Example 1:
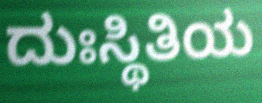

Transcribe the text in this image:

ದುಃಸ್ಥಿತಿಯ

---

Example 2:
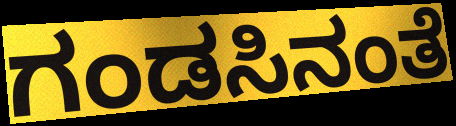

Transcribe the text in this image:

ಗಂಡಸಿನಂತೆ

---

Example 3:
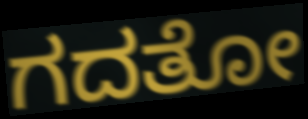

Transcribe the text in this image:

ಗದತೋ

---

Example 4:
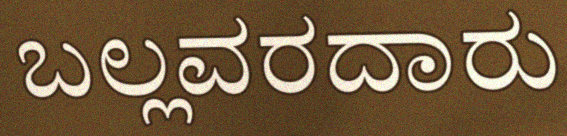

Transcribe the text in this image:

ಬಲ್ಲವರದಾರು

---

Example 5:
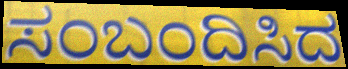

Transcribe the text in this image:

ಸಂಬಂದಿಸಿದ